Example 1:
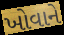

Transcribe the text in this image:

ખોવાને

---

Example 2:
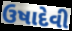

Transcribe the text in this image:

ઉષાદેવી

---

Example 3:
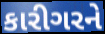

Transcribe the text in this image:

કારીગરને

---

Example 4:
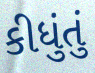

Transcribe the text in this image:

કીધુંતું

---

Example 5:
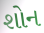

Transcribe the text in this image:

શોન